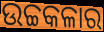
ଉଚ୍ଚକଳାର